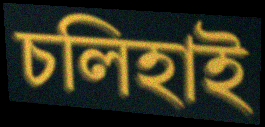
চলিহাই